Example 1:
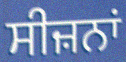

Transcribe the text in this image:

ਸੀਜ਼ਨਾਂ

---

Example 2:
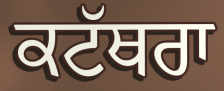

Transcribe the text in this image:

ਕਟੱਥਰਾ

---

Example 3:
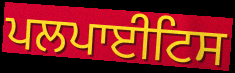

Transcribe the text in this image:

ਪਲਪਾਈਟਿਸ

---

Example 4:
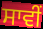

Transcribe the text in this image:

ਸਾਵੀਂ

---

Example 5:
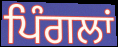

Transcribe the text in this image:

ਪਿੰਗਲਾਂ